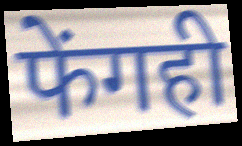
फेंगही